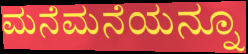
ಮನೆಮನೆಯನ್ನೂ